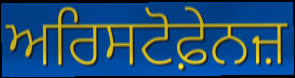
ਅਰਿਸਟੋਫ਼ੇਨਜ਼